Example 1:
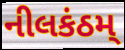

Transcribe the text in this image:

નીલકંઠમ્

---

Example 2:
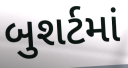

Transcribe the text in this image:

બુશર્ટમાં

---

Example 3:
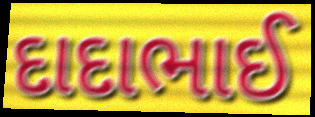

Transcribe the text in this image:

દાદાભાઈ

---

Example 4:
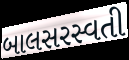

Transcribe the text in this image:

બાલસરસ્વતી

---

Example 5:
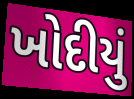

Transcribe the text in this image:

ખોદીયું